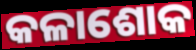
କଳାଶୋକ